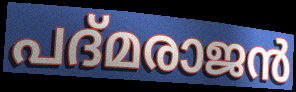
പദ്മരാജൻ